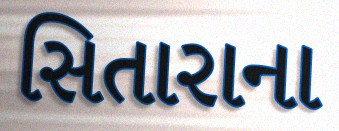
સિતારાના